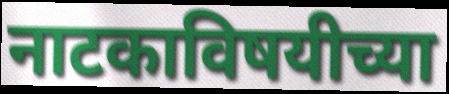
नाटकाविषयीच्या